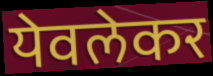
येवलेकर